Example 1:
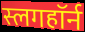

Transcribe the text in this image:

स्लगहॉर्न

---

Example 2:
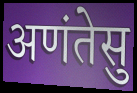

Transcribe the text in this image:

अणंतेसु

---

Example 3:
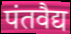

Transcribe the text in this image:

पंतवैद्य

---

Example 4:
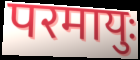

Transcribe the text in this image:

परमायुः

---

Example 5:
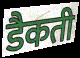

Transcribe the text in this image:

डैकती